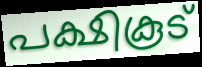
പക്ഷികൂട്